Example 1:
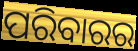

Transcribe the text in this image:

ପରିବାରର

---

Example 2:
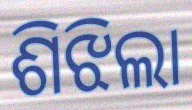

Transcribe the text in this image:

ଶିଝିଲା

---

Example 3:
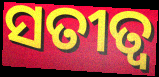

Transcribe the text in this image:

ସତୀତ୍ବ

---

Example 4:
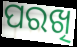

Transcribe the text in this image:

ପରଖି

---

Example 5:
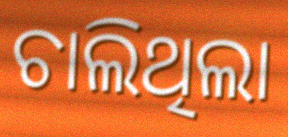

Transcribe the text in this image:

ଚାଲିଥିଲା